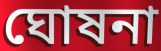
ঘোষনা